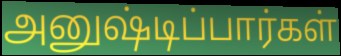
அனுஷ்டிப்பார்கள்